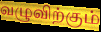
வழுவிற்கும்